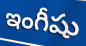
ఇంగీషు